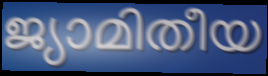
ജ്യാമിതീയ